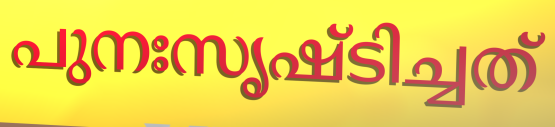
പുനഃസൃഷ്ടിച്ചത്